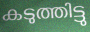
കടുത്തിട്ടു